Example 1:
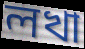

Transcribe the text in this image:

লখা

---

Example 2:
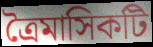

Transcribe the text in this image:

ত্রৈমাসিকটি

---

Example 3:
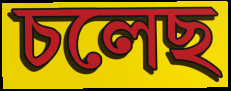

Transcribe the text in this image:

চলেছ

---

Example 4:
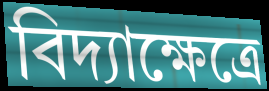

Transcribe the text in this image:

বিদ্যাক্ষেত্রে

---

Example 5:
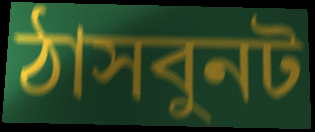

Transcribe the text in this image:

ঠাসবুনট